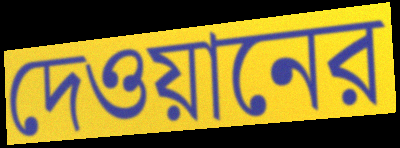
দেওয়ানের